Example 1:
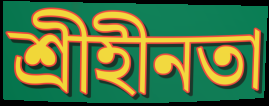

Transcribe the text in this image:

শ্রীহীনতা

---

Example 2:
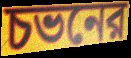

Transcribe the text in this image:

চভনের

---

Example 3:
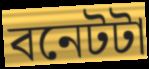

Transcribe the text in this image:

বনেটটা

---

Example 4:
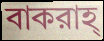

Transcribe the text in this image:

বাকরাহ্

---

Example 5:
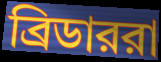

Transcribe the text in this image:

ব্রিডাররা